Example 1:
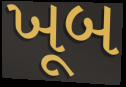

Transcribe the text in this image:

ખૂબ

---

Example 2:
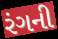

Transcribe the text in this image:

રંગની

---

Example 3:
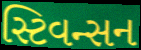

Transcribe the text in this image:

સ્ટિવન્સન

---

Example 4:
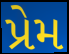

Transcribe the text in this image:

પ્રેમ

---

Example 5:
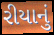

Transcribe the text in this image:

રીયાનું